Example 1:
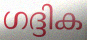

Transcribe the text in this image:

ഗദ്ദിക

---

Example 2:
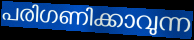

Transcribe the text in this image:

പരിഗണിക്കാവുന്ന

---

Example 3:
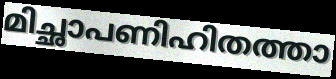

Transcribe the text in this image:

മിച്ഛാപണിഹിതത്താ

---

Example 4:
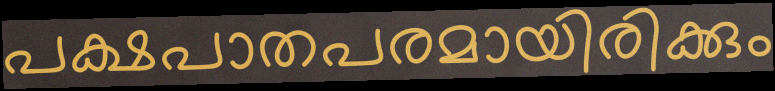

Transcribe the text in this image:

പക്ഷപാതപരമായിരിക്കും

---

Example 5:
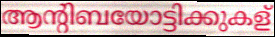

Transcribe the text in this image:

ആന്റിബയോട്ടിക്കുകള്